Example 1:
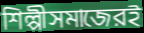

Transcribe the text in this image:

শিল্পীসমাজেরই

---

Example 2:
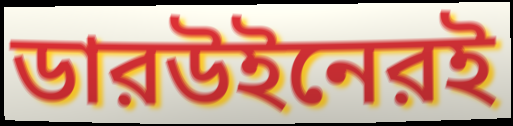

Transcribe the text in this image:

ডারউইনেরই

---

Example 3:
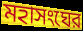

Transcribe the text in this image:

মহাসংঘের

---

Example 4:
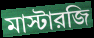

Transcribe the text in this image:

মাস্টারজি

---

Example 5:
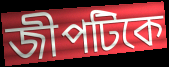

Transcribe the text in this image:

জীপটিকে